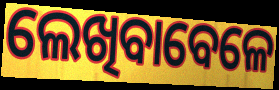
ଲେଖିବାବେଳେ